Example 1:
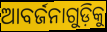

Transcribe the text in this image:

ଆବର୍ଜନାଗୁଡ଼ିକୁ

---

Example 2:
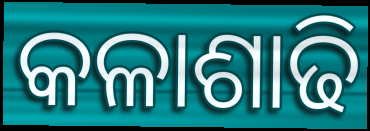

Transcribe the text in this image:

କଳାଶାଢି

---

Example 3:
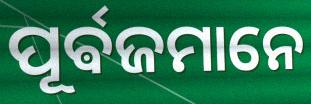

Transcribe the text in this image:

ପୂର୍ଵଜମାନେ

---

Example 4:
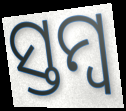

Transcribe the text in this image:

ସ୍ତମ୍ବ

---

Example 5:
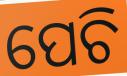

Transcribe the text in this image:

ପେଚି